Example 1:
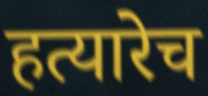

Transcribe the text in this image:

हत्यारेच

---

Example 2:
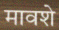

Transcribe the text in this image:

मावशे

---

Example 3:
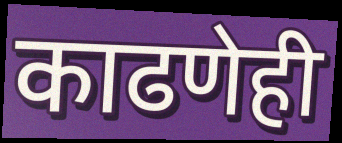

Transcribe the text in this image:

काढणेही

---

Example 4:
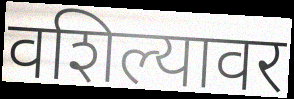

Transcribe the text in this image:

वशिल्यावर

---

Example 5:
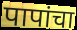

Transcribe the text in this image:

पापांचा